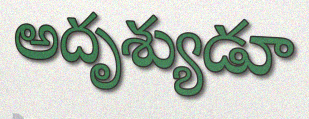
అదృశ్యుడూ